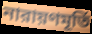
নারায়ণমূর্তি